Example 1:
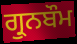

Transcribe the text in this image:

ਗ੍ਰੁਨਬੌਮ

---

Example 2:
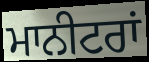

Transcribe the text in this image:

ਮਾਨੀਟਰਾਂ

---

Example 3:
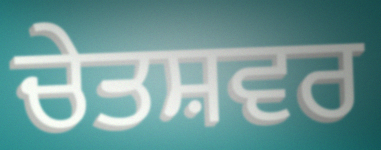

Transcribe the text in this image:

ਚੇਤਸ਼ਵਰ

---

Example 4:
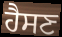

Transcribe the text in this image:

ਹੈਸਣ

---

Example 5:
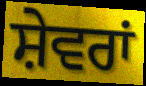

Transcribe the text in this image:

ਸ਼ੇਵਰਾਂ